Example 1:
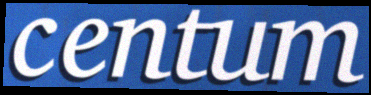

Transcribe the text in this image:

centum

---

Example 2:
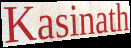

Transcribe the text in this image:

Kasinath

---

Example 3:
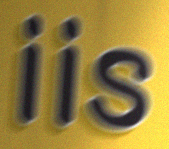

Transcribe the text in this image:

iis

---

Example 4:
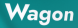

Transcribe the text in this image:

Wagon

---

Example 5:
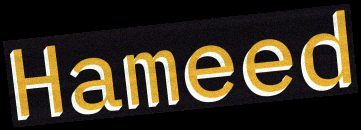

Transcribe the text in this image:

Hameed